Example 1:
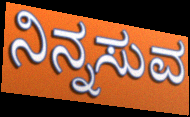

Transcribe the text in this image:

ನಿನ್ನಸುವ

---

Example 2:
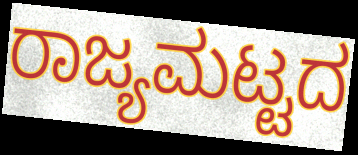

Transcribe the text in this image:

ರಾಜ್ಯಮಟ್ಟದ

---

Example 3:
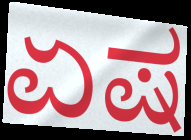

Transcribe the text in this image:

ಏಷ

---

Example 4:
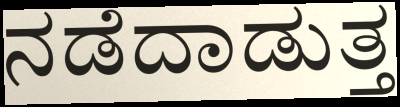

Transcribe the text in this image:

ನಡೆದಾಡುತ್ತ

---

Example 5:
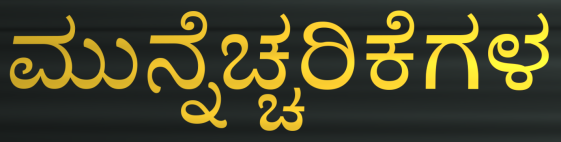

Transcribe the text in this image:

ಮುನ್ನೆಚ್ಚರಿಕೆಗಳ